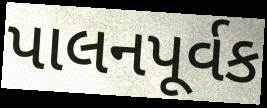
પાલનપૂર્વક